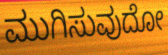
ಮುಗಿಸುವುದೋ